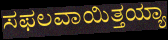
ಸಫಲವಾಯಿತ್ತಯ್ಯಾ